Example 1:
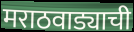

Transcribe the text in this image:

मराठवाड्याची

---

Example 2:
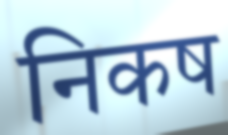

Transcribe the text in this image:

निकष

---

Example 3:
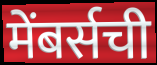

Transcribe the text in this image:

मेंबर्सची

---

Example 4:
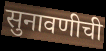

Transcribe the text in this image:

सुनावणीची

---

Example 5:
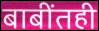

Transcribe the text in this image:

बाबींतही